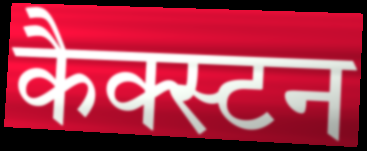
कैक्स्टन